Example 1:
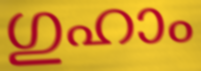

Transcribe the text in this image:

ഗുഹാം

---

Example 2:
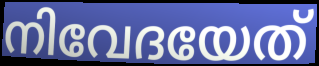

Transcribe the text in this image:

നിവേദയേത്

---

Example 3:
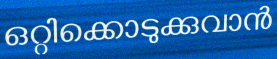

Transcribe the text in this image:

ഒറ്റിക്കൊടുക്കുവാൻ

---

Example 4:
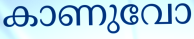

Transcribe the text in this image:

കാണുവോ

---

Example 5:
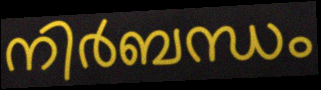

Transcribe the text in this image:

നിർബന്ധം